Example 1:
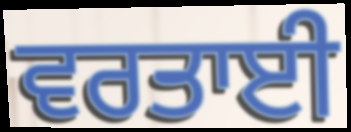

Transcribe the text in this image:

ਵਰਤਾਈ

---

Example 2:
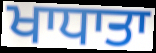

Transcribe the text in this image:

ਖਾਧਾਤਾ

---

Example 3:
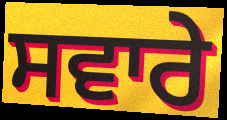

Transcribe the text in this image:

ਸਵਾਰੇ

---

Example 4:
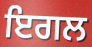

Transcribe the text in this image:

ਇਗਲ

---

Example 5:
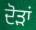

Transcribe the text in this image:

ਦੋੜਾਂ